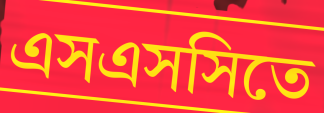
এসএসসিতে